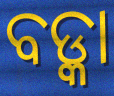
ବଡ୍କା